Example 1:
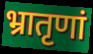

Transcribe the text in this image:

भ्रातृणां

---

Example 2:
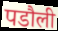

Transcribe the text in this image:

पडौली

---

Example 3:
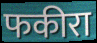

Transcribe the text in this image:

फकीरा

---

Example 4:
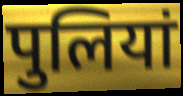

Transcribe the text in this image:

पुलियां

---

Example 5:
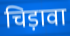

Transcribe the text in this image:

चिड़ावा